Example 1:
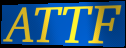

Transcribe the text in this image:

ATTF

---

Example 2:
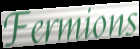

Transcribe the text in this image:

Fermions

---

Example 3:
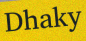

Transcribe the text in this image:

Dhaky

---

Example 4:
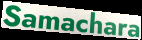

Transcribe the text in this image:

Samachara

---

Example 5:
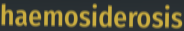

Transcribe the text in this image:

haemosiderosis